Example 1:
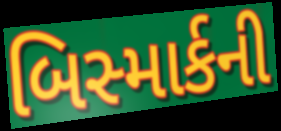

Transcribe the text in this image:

બિસ્માર્કની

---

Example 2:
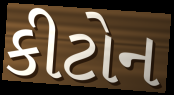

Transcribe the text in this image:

કીટોન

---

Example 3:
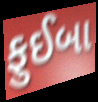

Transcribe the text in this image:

ફુઈબા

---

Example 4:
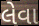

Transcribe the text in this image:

લેવા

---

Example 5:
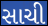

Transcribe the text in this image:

સાચી